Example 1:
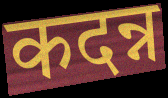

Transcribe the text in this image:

कदन्न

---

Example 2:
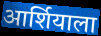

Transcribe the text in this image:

आर्शियाला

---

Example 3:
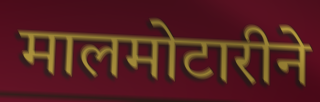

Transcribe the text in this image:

मालमोटारीने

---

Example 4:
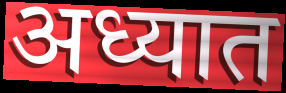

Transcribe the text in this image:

अध्यात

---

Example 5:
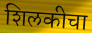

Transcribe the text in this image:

शिलकीचा